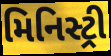
મિનિસ્ટ્રી